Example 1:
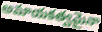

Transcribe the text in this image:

అమాయకత్వమైనా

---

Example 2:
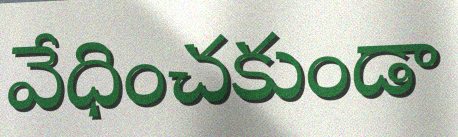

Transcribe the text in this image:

వేధించకుండా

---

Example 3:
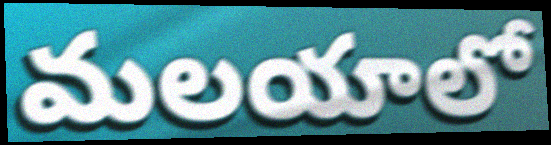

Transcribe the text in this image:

మలయాలో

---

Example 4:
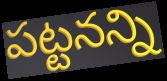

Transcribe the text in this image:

పట్టనన్ని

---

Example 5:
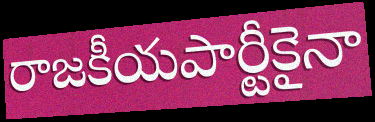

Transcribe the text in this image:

రాజకీయపార్టీకైనా